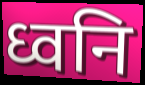
ध्वनि